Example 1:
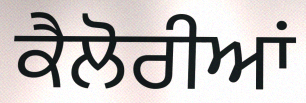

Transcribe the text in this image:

ਕੈਲੋਰੀਆਂ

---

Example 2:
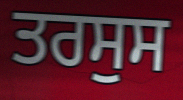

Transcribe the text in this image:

ਤਰਸੁਸ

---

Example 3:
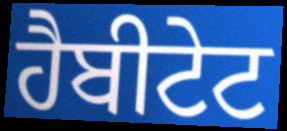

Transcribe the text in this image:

ਹੈਬੀਟੇਟ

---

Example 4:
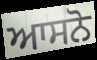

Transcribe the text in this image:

ਆਸਨੋ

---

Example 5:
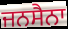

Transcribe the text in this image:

ਜਨਸੈਨਾ